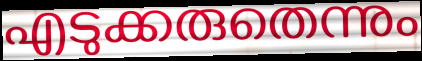
എടുക്കരുതെന്നും